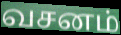
வசனம்